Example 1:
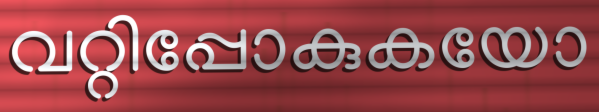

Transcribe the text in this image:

വറ്റിപ്പോകുകയോ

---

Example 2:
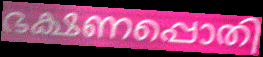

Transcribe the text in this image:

ഭക്ഷണപ്പൊതി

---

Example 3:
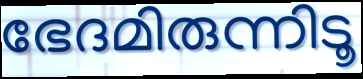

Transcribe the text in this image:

ഭേദമിരുന്നിടൂ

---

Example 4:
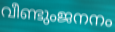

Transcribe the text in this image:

വീണ്ടുംജനനം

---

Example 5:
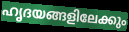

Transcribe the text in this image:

ഹൃദയങ്ങളിലേക്കും